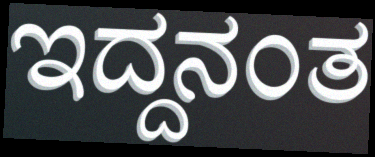
ಇದ್ದನಂತ